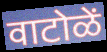
वाटोळें